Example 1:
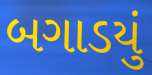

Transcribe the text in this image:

બગાડયું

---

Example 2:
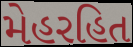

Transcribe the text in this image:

મેહરહિત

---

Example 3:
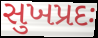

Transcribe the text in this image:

સુખપ્રદઃ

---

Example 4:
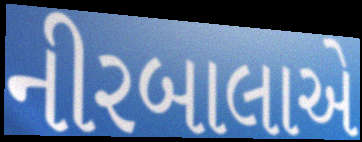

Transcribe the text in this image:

નીરબાલાએ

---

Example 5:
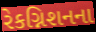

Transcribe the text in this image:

રેકગ્નિશનના